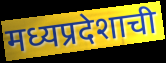
मध्यप्रदेशाची